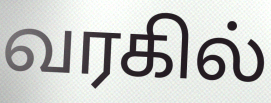
வரகில்